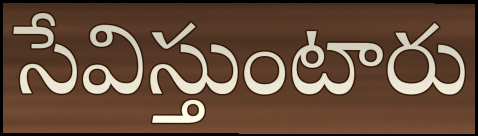
సేవిస్తుంటారు